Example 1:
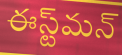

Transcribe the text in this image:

ఈస్ట్‌మన్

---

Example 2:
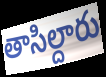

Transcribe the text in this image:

తాసిల్దారు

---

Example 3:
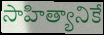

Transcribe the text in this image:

సాహిత్యానికే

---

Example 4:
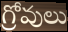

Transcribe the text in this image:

గ్రోవులు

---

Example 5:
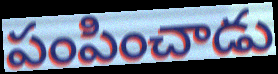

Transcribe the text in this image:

పంపించాడు